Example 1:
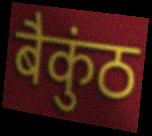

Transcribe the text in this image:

बैकुंठ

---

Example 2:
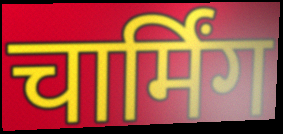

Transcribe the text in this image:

चार्मिंग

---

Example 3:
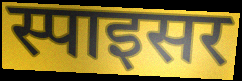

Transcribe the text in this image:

स्पाइसर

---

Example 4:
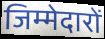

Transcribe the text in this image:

जिम्मेदारों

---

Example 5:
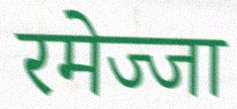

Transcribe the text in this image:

रमेज्जा